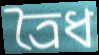
ত্রৈধ